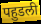
पहुडली